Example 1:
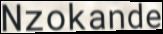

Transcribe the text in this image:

Nzokande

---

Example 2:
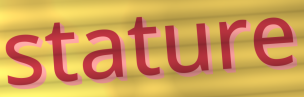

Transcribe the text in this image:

stature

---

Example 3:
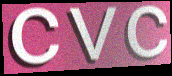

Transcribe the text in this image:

cvc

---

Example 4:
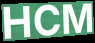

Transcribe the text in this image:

HCM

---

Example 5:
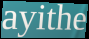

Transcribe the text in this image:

ayithe